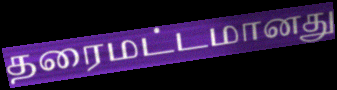
தரைமட்டமானது